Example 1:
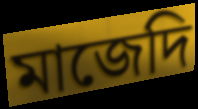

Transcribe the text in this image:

মাজেদি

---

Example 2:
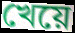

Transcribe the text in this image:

খেয়ে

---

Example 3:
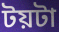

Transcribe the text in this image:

টয়টা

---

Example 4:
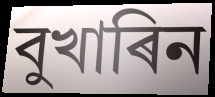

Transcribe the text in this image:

বুখাৰিন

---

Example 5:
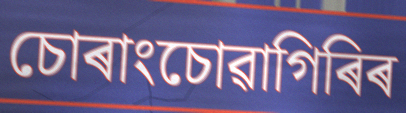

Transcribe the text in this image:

চোৰাংচোৱাগিৰিৰ